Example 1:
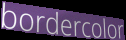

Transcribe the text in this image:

bordercolor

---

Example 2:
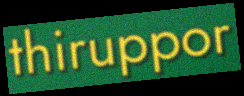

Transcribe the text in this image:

thiruppor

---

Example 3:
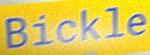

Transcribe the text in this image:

Bickle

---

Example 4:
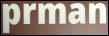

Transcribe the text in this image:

prman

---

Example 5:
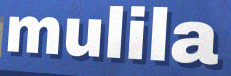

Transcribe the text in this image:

mulila